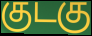
குடகு